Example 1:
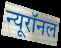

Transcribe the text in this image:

न्यूरॉनल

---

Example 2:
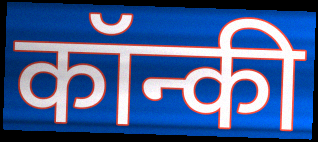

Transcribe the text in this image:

कॉन्की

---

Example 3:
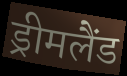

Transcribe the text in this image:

ड्रीमलैंड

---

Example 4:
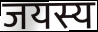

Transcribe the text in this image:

जयस्य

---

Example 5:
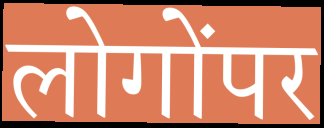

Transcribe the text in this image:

लोगोंपर